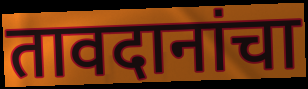
तावदानांचा